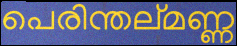
പെരിന്തല്മണ്ണ